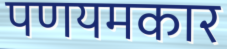
पणयमकार